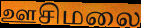
ஊசிமலை